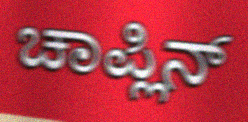
ಚಾಪ್ಲಿನ್